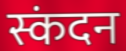
स्कंदन